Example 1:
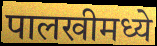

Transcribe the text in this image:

पालखीमध्ये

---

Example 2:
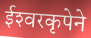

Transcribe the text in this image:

ईश्वरकृपेने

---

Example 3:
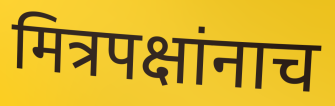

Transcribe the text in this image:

मित्रपक्षांनाच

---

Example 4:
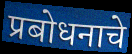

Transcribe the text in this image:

प्रबोधनाचे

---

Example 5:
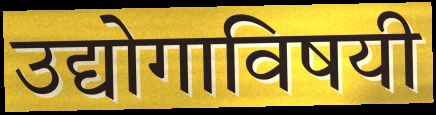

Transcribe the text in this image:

उद्योगाविषयी